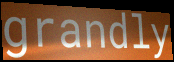
grandly